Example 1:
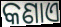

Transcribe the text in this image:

କଣାଏ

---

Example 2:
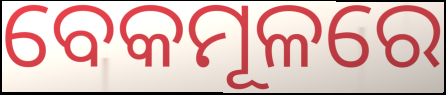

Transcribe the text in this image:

ବେକମୂଳରେ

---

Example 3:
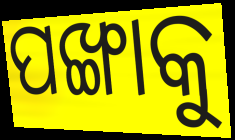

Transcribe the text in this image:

ପଙ୍ଖାକୁ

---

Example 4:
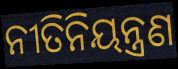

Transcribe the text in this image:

ନୀତିନିୟନ୍ତ୍ରଣ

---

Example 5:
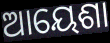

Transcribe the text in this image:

ଆୟେଶା